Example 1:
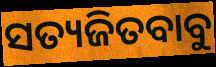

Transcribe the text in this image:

ସତ୍ୟଜିତବାବୁ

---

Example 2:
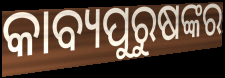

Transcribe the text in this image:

କାବ୍ୟପୁରୁଷଙ୍କର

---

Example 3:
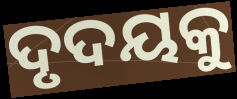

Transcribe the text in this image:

ଦୃଦୟକୁ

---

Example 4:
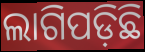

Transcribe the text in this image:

ଲାଗିପଡ଼ିଛି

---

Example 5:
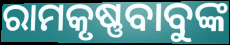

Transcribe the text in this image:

ରାମକୃଷ୍ଣବାବୁଙ୍କ